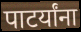
पाटर्यांना